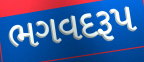
ભગવદરૂપ